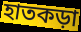
হাতকড়া